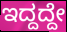
ಇದ್ದದ್ದೇ